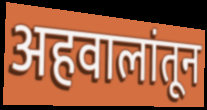
अहवालांतून